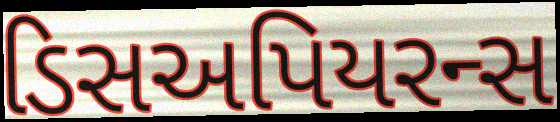
ડિસઅપિયરન્સ